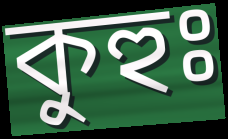
কুহুঃ